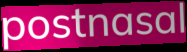
postnasal